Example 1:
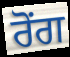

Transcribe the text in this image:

ਰੋਂਗ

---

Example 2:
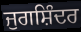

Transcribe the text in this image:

ਜੁਗਸ਼ਿੰਦਰ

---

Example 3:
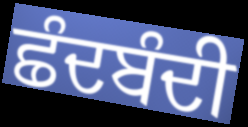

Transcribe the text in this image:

ਛੰਦਬੰਦੀ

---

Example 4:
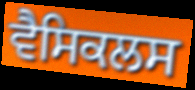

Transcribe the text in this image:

ਵੈਸਿਕਲਸ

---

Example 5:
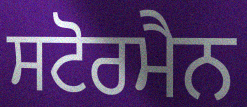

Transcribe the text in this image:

ਸਟੋਰਮੈਨ